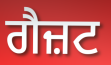
ਗੈਜ਼ਟ